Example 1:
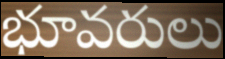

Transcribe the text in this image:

భూవరులు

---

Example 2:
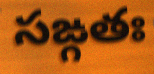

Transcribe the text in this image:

సఙ్గతః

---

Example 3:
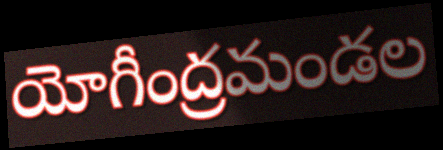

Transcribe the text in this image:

యోగీంద్రమండల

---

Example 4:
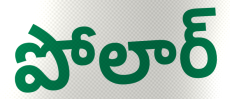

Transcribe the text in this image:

పోలార్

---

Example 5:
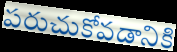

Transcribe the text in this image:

పరుచుకోవడానికి